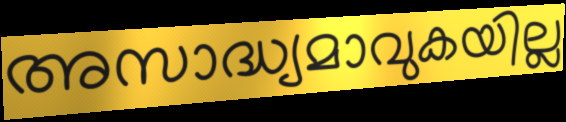
അസാദ്ധ്യമാവുകയില്ല